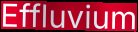
Effluvium